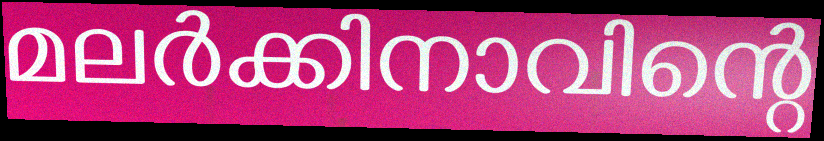
മലർക്കിനാവിന്റെ